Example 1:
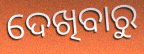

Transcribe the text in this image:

ଦେଖିବାରୁ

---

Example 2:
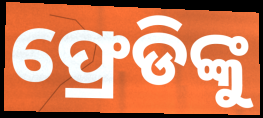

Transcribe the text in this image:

ଫ୍ରେଡିଙ୍କୁ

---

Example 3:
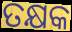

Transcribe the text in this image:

ତକ୍ଷକ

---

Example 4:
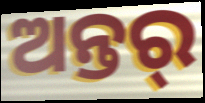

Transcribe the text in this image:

ଅନ୍ତର୍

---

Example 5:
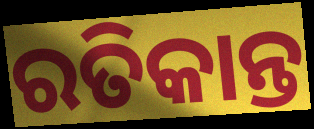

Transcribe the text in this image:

ରତିକାନ୍ତ